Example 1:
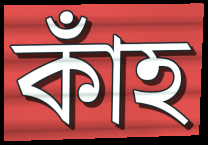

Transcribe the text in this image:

কাঁহ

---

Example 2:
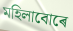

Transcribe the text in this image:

মহিলাবোৰে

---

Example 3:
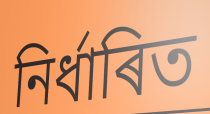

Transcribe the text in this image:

নিৰ্ধাৰিত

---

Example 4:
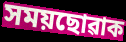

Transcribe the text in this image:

সময়ছোৱাক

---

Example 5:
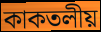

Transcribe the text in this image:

কাকতলীয়